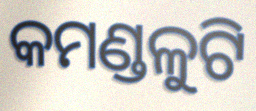
କମଣ୍ଡଳୁଟି